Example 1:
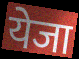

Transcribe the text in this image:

येजा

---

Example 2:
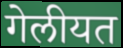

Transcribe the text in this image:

गेलीयत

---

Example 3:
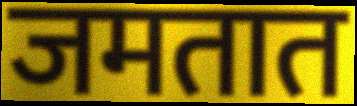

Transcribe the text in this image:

जमतात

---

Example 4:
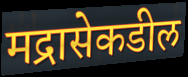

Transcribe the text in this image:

मद्रासेकडील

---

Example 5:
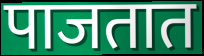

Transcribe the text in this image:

पाजतात